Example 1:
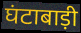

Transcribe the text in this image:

घंटाबाड़ी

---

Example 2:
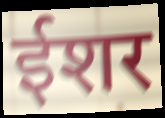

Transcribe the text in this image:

ईशर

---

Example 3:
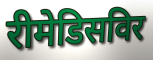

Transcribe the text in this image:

रीमेडिसविर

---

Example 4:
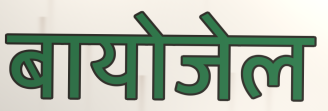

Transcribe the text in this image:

बायोजेल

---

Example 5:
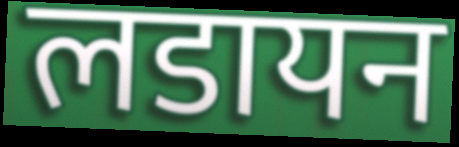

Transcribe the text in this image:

लडायन